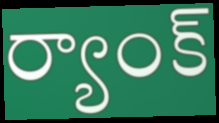
ర్యాంక్